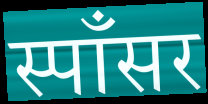
स्पॉंसर